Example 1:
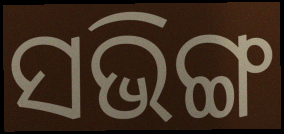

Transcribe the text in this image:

ସଭିଙ୍ଗ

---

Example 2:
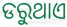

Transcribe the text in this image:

ଡରୁଥାଏ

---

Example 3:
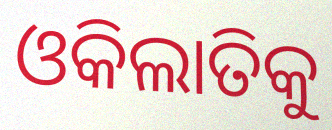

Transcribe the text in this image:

ଓକିଲାତିକୁ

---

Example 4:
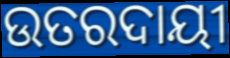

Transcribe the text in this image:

ଉତରଦାୟୀ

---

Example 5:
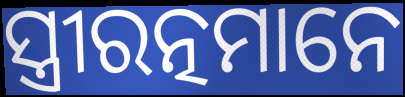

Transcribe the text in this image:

ସ୍ତ୍ରୀରତ୍ନମାନେ